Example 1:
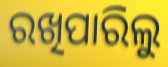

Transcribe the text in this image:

ରଖିପାରିଲୁ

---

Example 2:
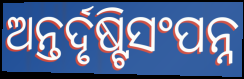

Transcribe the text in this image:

ଅନ୍ତର୍ଦୃଷ୍ଟିସଂପନ୍ନ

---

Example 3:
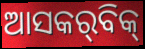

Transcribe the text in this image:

ଆସକର୍‌ବିକ୍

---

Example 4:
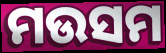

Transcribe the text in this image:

ମଉସମ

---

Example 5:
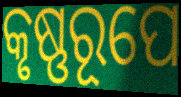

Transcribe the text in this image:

କୃଷ୍ଣରୂପେ